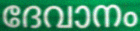
ദേവാനം